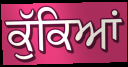
ਕੁੱਕਿਆਂ